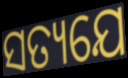
ସତ୍ୟଯେ